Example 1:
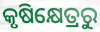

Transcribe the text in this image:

କୃଷିକ୍ଷେତ୍ରରୁ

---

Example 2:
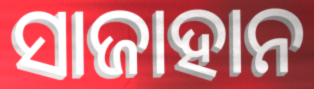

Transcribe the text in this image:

ସାଜାହାନ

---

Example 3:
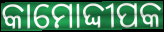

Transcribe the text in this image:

କାମୋଦ୍ଦୀପକ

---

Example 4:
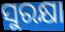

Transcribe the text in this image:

ସୁରକ୍ଷା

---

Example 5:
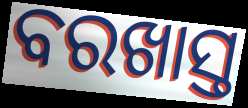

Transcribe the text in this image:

ବରଖାସ୍ତ